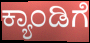
ಕ್ಯಾಂಡಿಗೆ